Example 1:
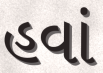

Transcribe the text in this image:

હવાં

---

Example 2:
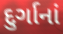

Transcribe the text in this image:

દુર્ગાનાં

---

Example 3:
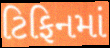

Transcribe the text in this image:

ટિફિનમાં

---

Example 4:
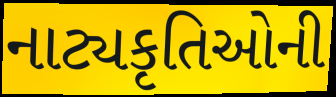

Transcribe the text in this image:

નાટ્યકૃતિઓની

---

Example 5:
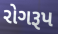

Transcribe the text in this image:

રોગરૂપ